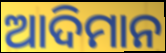
ଆଦିମାନ